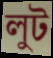
লুট